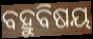
ବହୁବିଷୟ